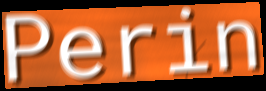
Perin